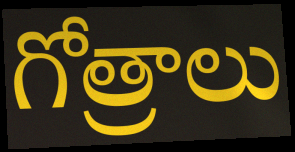
గోత్రాలు